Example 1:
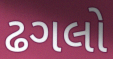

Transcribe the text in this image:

ઢગલો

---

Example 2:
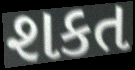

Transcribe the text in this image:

શકત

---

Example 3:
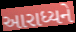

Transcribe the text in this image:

આરાધ્યને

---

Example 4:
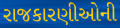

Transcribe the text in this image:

રાજકારણીઓની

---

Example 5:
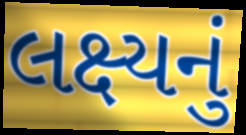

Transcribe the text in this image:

લક્ષ્યનું